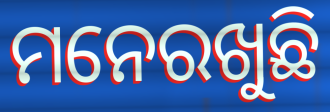
ମନେରଖୁଛି